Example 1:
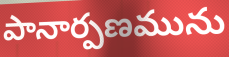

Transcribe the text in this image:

పానార్పణమును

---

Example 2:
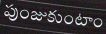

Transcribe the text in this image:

పుంజుకుంటాం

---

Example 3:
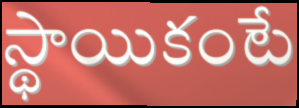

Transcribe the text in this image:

స్థాయికంటే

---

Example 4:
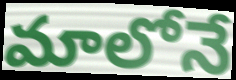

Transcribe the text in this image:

మాలోనే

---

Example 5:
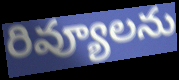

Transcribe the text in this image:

రివ్యూలను